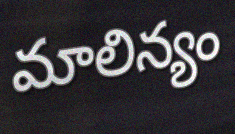
మాలిన్యం